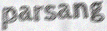
parsang